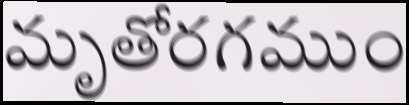
మృతోరగముం